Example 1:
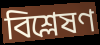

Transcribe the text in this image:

বিশ্লেষণ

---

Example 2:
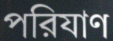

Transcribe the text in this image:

পরিযাণ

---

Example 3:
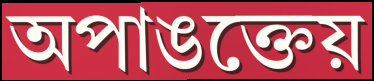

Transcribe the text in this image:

অপাঙক্তেয়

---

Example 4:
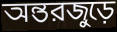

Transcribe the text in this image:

অন্তরজুড়ে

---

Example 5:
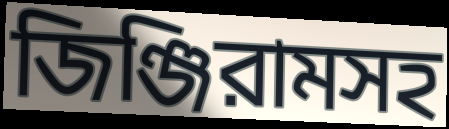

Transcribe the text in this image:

জিঞ্জিরামসহ